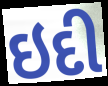
ઇદી